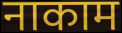
नाकाम